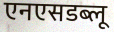
एनएसडब्लू